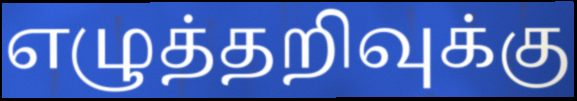
எழுத்தறிவுக்கு